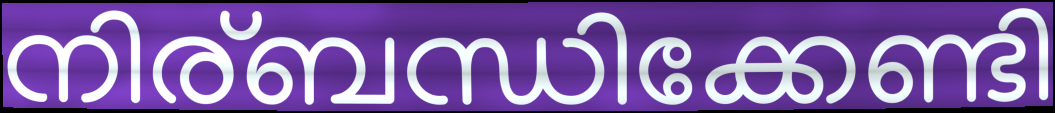
നിര്ബന്ധിക്കേണ്ടി